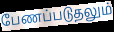
பேணப்படுதலும்